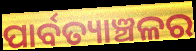
ପାର୍ବତ୍ୟାଞ୍ଚଳର